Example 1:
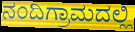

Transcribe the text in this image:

ನಂದಿಗ್ರಾಮದಲ್ಲಿ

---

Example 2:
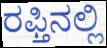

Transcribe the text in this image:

ರಫ್ತಿನಲ್ಲಿ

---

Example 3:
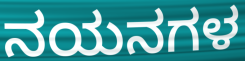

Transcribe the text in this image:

ನಯನಗಳ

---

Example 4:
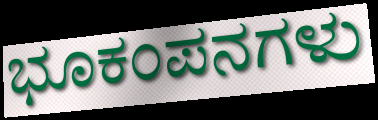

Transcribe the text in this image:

ಭೂಕಂಪನಗಳು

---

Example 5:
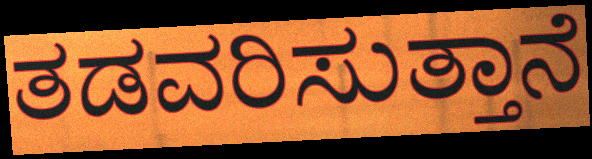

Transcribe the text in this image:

ತಡವರಿಸುತ್ತಾನೆ